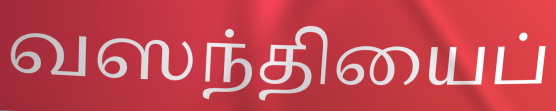
வஸந்தியைப்